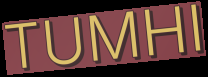
TUMHI